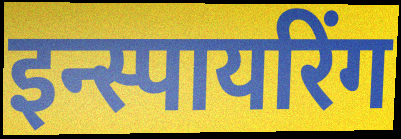
इन्स्पायरिंग